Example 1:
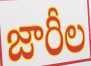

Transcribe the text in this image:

జారీల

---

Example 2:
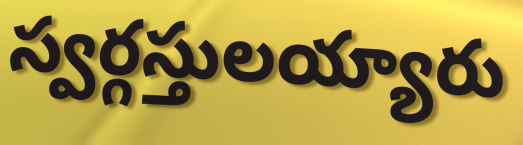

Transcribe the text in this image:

స్వర్గస్తులయ్యారు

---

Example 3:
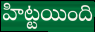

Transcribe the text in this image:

హిట్టయింది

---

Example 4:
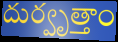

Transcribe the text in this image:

దుర్వృత్తాం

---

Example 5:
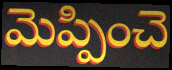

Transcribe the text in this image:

మెప్పించె